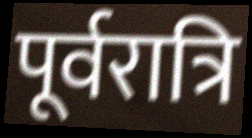
पूर्वरात्रि